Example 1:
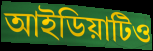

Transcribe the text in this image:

আইডিয়াটিও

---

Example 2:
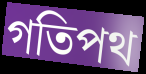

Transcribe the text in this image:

গতিপথ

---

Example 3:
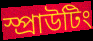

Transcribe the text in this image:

স্প্রাউটিং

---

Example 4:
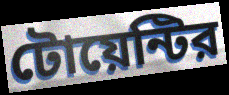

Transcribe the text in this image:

টোয়েন্টির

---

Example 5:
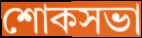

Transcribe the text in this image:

শোকসভা